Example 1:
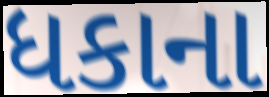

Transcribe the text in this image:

ધકાના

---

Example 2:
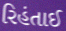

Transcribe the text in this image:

રિહંતાઈ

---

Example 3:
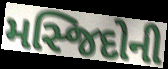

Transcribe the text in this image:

મસ્જિદોની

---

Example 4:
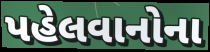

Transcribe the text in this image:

પહેલવાનોના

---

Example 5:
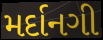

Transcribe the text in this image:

મર્દાનગી